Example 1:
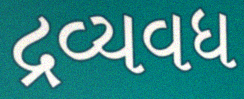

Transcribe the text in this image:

દ્રવ્યવધ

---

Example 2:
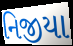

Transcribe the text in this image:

નિજીયા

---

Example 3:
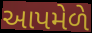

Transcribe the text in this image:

આપમેળે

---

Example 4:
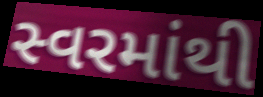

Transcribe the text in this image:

સ્વરમાંથી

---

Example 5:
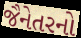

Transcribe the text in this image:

જૈનેતરનો